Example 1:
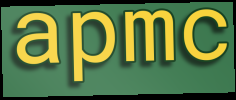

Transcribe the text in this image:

apmc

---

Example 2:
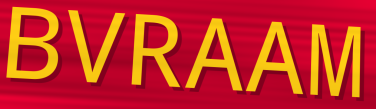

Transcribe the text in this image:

BVRAAM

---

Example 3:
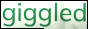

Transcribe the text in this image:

giggled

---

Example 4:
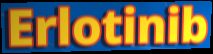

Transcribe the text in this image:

Erlotinib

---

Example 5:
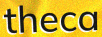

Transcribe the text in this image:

theca